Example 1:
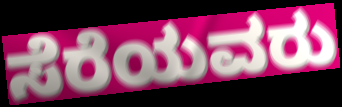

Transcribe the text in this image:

ಸೆರೆಯವರು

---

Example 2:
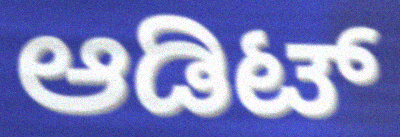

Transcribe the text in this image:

ಆಡಿಟ್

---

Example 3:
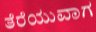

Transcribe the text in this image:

ತೆರೆಯುವಾಗ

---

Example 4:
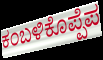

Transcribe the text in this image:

ಕಂಬಳಿಕೊಪ್ಪೆಪ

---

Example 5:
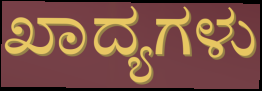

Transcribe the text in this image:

ಖಾದ್ಯಗಳು